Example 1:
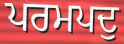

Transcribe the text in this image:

ਪਰਮਪਦੁ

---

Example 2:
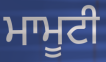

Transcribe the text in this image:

ਮਾਮੂਟੀ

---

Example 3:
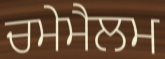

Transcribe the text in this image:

ਚਮੇਮੈਲਮ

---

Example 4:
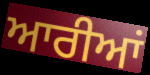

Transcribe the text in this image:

ਆਰੀਆਂ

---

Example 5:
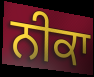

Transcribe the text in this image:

ਨੀਕਾ